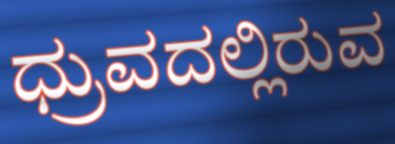
ಧ್ರುವದಲ್ಲಿರುವ